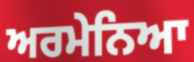
ਅਰਮੇਨਿਆ